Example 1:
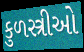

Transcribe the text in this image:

કુળસ્ત્રીઓ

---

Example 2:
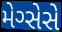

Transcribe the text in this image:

મેગ્સેસે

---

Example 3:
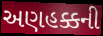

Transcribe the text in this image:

અણહક્કની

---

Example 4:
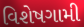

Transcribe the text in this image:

વિશેષગામી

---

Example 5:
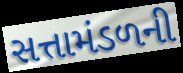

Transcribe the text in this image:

સત્તામંડળની